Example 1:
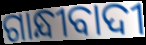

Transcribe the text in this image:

ଗାନ୍ଧୀବାଦୀ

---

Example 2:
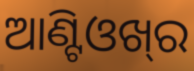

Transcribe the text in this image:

ଆଣ୍ଟିଓଖ୍‍ର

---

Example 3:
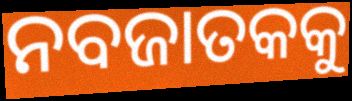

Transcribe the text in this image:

ନବଜାତକକୁ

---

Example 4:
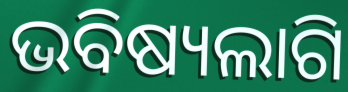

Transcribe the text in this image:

ଭବିଷ୍ୟଲାଗି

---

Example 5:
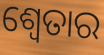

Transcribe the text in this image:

ଶ୍ଵେତାର